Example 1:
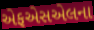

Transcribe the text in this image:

એફએસએલના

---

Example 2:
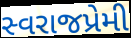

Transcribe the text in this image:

સ્વરાજપ્રેમી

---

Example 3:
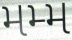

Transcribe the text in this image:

મમ્મ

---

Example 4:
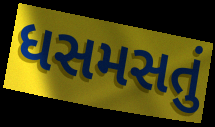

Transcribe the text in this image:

ધસમસતું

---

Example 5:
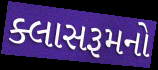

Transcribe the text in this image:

ક્લાસરૂમનો